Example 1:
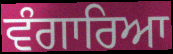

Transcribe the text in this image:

ਵੰਗਾਰਿਆ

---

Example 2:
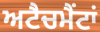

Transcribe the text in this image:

ਅਟੈਚਮੈਂਟਾਂ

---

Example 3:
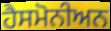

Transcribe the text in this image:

ਹੈਸਮੋਨੀਅਨ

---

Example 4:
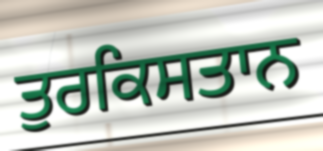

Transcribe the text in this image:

ਤੁਰਕਿਸਤਾਨ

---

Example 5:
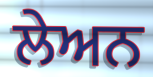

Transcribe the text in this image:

ਲੇਅਨ